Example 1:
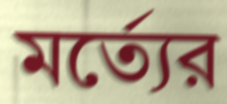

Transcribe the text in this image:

মর্ত্যের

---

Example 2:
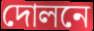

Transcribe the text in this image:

দোলনে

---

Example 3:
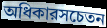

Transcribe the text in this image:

অধিকারসচেতন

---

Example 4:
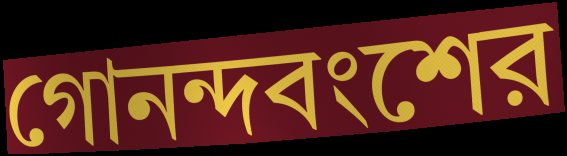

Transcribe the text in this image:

গোনন্দবংশের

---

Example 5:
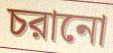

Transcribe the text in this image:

চরানো